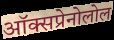
ऑक्सप्रेनोलोल